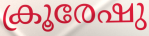
ക്രൂരേഷു